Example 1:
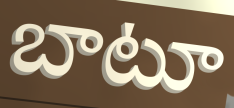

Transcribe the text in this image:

బాటూ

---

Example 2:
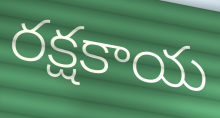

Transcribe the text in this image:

రక్షకాయ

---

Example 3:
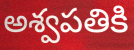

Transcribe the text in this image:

అశ్వపతికి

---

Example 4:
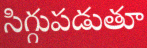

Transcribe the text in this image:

సిగ్గుపడుతూ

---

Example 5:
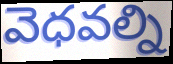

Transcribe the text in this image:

వెధవల్ని